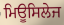
ਮਿਊਸਿਲੇਜ